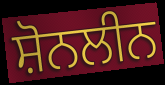
ਸ਼ੋਨਲੀਨ